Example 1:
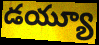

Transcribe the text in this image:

డయ్యూ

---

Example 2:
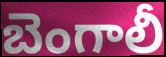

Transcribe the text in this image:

బెంగాలీ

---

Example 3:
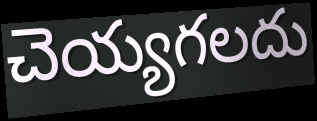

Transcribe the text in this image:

చెయ్యగలదు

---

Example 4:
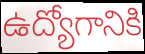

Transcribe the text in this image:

ఉద్యోగానికి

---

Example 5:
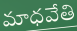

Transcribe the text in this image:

మాధవేతి